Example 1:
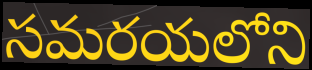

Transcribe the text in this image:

సమరయలోని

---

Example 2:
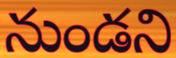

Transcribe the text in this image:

నుండని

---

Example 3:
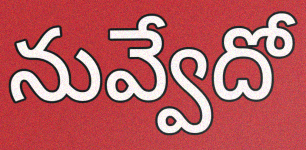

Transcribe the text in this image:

నువ్వేదో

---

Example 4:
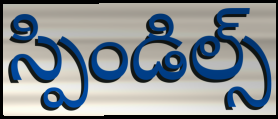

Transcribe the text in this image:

స్పిండిల్స్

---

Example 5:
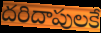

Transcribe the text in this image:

దరిదాపులకే